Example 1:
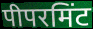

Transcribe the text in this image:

पीपरमिंट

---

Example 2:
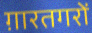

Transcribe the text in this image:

ग़ारतगरों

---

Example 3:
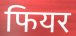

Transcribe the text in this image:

फियर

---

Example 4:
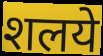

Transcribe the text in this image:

शलये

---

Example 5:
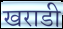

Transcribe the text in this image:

खराडी